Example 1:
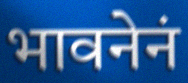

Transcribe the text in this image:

भावनेनं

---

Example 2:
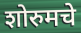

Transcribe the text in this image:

शोरुमचे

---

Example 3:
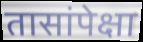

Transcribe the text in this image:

तासांपेक्षा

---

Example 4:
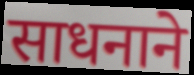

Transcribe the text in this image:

साधनाने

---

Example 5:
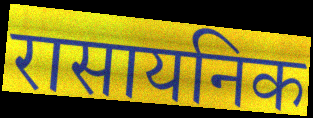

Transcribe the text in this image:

रासायनिक